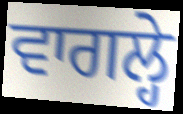
ਵਾਗਲ੍ਹੇ